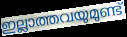
ഇല്ലാത്തവയുമുണ്ട്